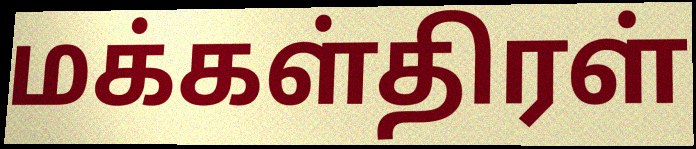
மக்கள்திரள்